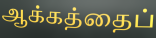
ஆக்கத்தைப்